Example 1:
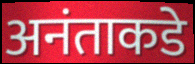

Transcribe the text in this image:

अनंताकडे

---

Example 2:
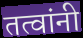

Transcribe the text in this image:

तत्वांनी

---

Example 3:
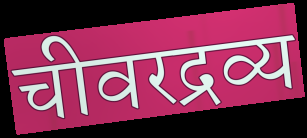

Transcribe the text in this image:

चीवरद्रव्य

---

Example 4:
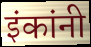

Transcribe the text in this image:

इंकांनी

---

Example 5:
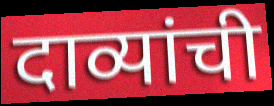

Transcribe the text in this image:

दाव्यांची